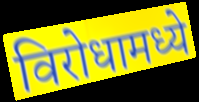
विरोधामध्ये